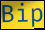
Bip